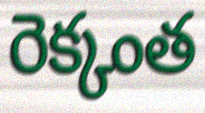
రెక్కంత